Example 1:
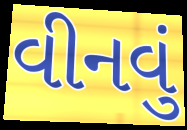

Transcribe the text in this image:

વીનવું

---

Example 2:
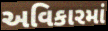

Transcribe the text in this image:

અવિકારમાં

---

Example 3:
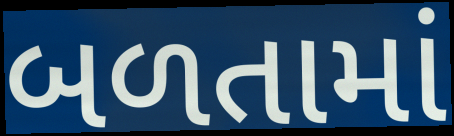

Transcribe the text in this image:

બળતામાં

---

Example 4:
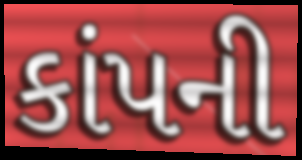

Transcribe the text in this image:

કાંપની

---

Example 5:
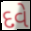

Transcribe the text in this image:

દવે